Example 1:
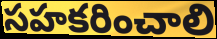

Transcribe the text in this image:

సహకరించాలి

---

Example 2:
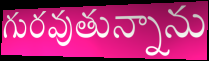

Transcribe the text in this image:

గురవుతున్నాను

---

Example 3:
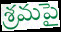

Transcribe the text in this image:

శ్రమపై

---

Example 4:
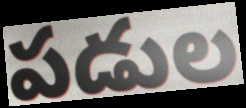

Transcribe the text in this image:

పడుల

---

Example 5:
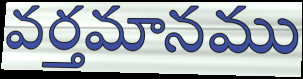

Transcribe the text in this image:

వర్తమానము